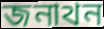
জনাথন